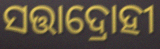
ସତ୍ତାଦ୍ରୋହୀ